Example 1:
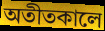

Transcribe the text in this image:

অতীতকালে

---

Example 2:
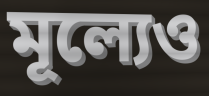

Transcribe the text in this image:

মূল্যেও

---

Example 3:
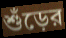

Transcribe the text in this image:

শুঁড়ের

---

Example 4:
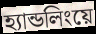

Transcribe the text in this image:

হ্যান্ডলিংয়ে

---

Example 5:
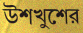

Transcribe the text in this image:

উশখুশের